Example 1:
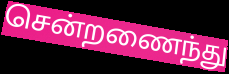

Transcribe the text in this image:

சென்றணைந்து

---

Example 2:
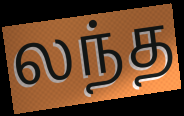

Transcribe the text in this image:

லந்த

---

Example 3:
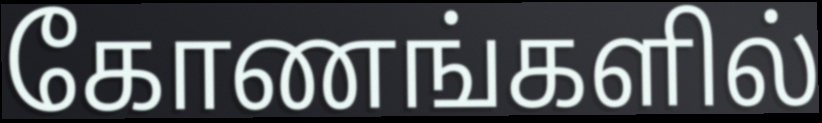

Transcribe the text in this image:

கோணங்களில்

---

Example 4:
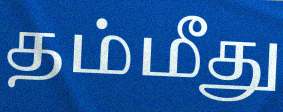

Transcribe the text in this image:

தம்மீது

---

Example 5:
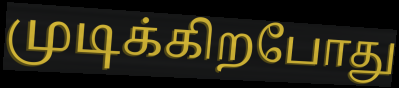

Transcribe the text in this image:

முடிக்கிறபோது